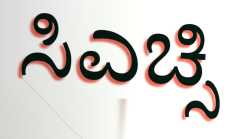
ಸಿಎಚ್ಸಿ